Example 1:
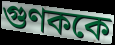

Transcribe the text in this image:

গুণককে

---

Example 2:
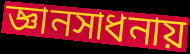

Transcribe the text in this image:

জ্ঞানসাধনায়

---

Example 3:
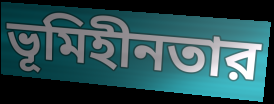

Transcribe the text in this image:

ভূমিহীনতার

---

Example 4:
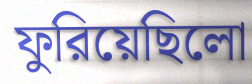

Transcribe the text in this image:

ফুরিয়েছিলো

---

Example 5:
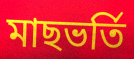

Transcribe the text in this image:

মাছভর্তি